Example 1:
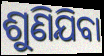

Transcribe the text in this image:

ଶୁଣିଯିବା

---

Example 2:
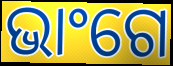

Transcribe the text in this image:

ଭାଂଗେ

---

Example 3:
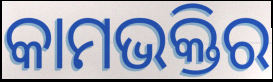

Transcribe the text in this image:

କାମଭକ୍ତିର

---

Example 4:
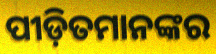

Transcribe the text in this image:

ପୀଡ଼ିତମାନଙ୍କର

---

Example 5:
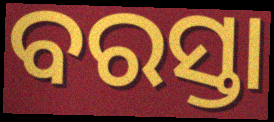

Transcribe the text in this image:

ବରସ୍ତା